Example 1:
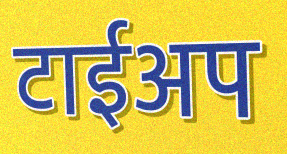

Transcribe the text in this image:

टाईअप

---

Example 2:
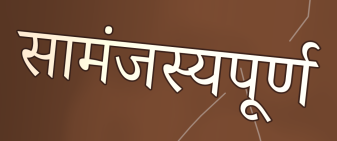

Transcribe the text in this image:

सामंजस्यपूर्ण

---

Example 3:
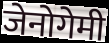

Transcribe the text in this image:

जेनोगेमी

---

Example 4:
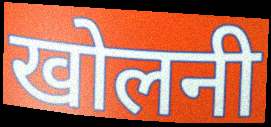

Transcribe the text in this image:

खोलनी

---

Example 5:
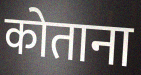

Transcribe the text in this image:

कोताना